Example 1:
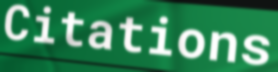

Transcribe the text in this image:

Citations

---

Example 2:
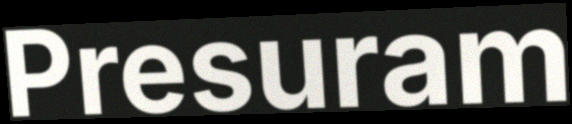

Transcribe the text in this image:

Presuram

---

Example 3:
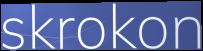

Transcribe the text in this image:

skrokon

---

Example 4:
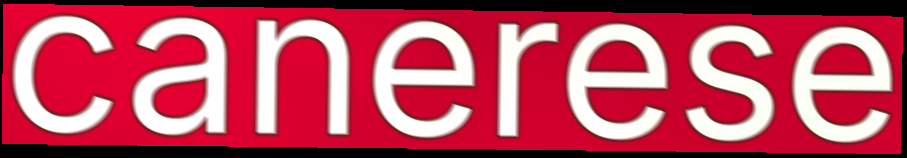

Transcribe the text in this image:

canerese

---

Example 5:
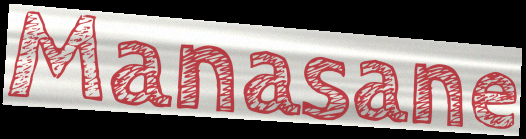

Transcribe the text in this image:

Manasane